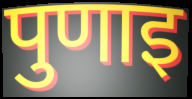
पुणाइ